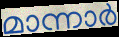
മാന്നാർ